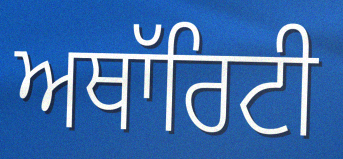
ਅਥਾੱਰਿਟੀ